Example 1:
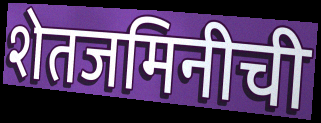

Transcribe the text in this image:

शेतजमिनीची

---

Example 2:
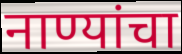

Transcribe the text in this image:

नाण्यांचा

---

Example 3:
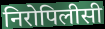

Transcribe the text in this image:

निरोपिलीसी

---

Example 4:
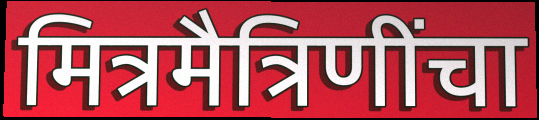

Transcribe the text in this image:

मित्रमैत्रिणींचा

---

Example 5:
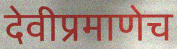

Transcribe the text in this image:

देवीप्रमाणेच